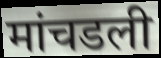
मांचडली